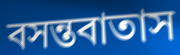
বসন্তবাতাস